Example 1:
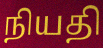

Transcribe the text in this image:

நியதி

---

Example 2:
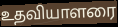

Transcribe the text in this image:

உதவியாளரை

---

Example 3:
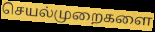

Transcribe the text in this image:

செயல்முறைகளை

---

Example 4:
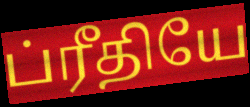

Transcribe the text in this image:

ப்ரீதியே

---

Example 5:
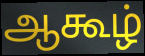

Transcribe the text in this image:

ஆகூழ்